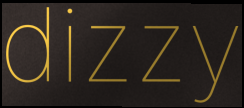
dizzy